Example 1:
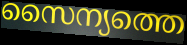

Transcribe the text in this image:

സൈന്യത്തെ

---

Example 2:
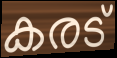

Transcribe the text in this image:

കരട്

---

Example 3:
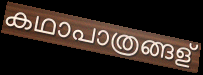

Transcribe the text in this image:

കഥാപാത്രങ്ങള്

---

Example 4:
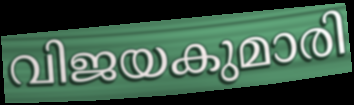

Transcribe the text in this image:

വിജയകുമാരി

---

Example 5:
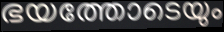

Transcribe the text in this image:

ഭയത്തോടെയും